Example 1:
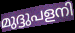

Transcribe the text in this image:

മുദ്ദുപളനി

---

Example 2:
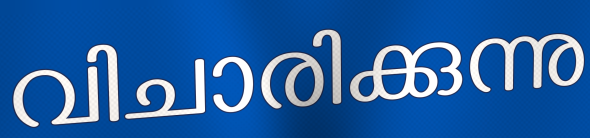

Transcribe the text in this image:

വിചാരിക്കുന്നു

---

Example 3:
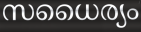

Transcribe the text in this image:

സധൈര്യം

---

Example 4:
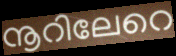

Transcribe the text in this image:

നൂറിലേറെ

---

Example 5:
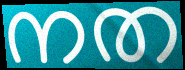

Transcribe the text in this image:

നത